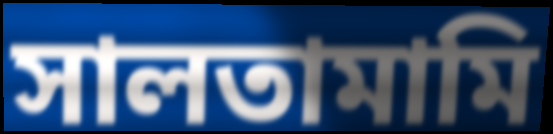
সালতামামি